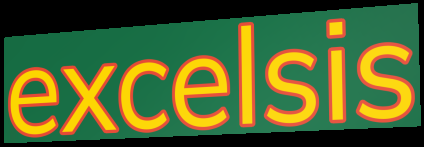
excelsis